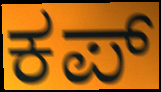
ಕಪ್